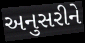
અનુસરીને